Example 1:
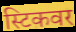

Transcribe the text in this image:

स्टिकवर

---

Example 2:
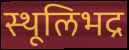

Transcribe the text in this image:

स्थूलिभद्र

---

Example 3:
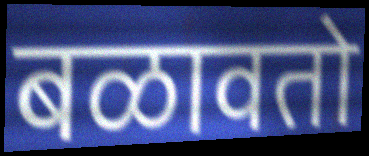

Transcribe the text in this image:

बळावतो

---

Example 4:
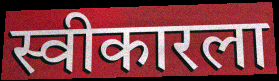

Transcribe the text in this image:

स्वीकारला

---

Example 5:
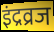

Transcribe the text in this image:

इंद्रव्रज